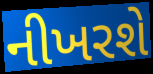
નીખરશે